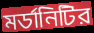
মর্ডানিটির